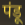
पंडू